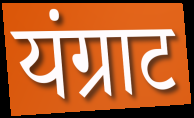
यंग्राट